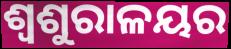
ଶ୍ୱଶୁରାଳୟର